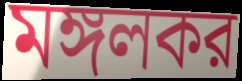
মঙ্গলকর